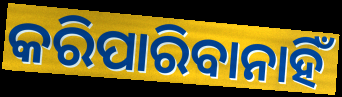
କରିପାରିବାନାହିଁ